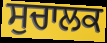
ਸੁਚਾਲਕ